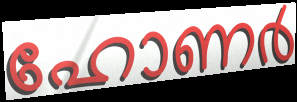
ഹോണർ